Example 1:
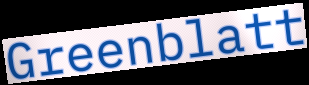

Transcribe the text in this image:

Greenblatt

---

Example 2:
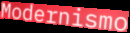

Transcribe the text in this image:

Modernismo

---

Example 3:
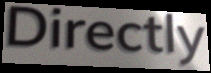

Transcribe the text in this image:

Directly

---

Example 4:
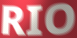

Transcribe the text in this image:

RIO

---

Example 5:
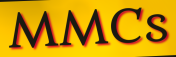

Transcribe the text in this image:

MMCs